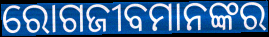
ରୋଗଜୀବମାନଙ୍କର